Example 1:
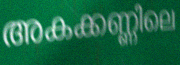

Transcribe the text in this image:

അകക്കണ്ണിലെ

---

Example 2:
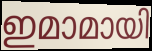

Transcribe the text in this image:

ഇമാമായി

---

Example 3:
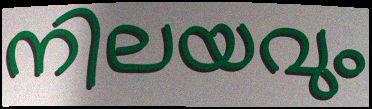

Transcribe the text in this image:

നിലയവും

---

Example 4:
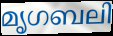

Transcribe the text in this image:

മൃഗബലി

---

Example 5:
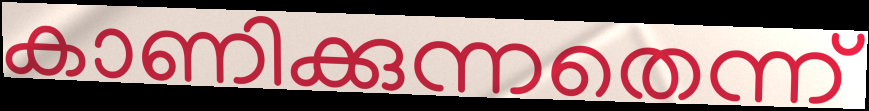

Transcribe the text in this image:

കാണിക്കുന്നതെന്ന്